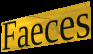
Faeces